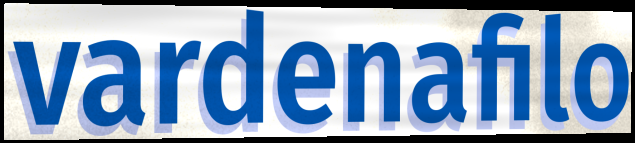
vardenafilo